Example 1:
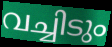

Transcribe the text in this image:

വച്ചിടും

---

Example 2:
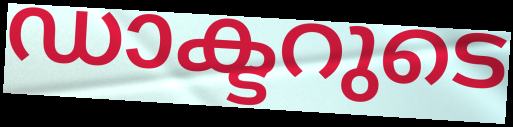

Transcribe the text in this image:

ഡാക്ടറുടെ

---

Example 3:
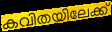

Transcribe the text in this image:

കവിതയിലേക്ക്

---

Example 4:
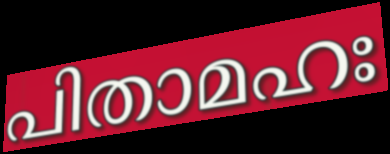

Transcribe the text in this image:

പിതാമഹഃ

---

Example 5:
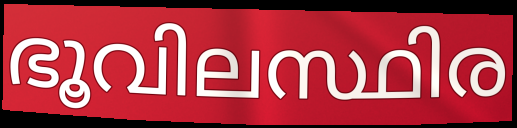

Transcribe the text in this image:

ഭൂവിലസ്ഥിര